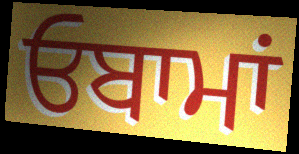
ਓਬਾਮਾਂ